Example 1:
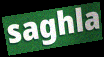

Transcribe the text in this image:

saghla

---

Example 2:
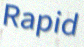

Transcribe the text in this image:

Rapid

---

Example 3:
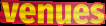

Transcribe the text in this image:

venues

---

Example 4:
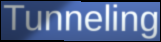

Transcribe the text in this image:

Tunneling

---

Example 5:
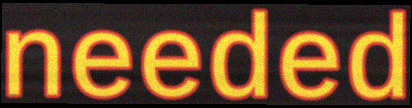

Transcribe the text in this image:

needed